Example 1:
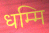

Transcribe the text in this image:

धम्मि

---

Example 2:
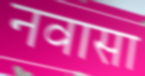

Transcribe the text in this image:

नवासा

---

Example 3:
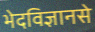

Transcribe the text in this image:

भेदविज्ञानसे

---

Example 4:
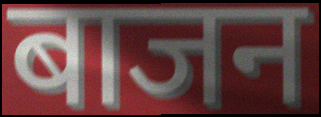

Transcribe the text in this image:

बाजन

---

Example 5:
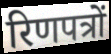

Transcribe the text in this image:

रिणपत्रों